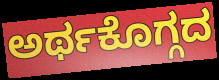
ಅರ್ಥಕೊಗ್ಗದ